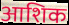
आशिक